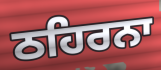
ਠਹਿਰਨਾ